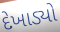
દેખાડ્યો